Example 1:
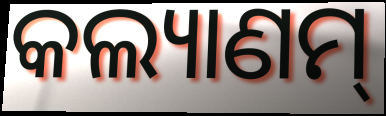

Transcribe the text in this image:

କଲ୍ୟାଣମ୍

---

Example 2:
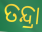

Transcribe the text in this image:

ତନ୍ଦ୍ରା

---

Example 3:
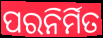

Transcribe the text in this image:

ପରନିର୍ମିତ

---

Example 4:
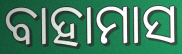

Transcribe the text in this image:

ବାହାମାସ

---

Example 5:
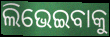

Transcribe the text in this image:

ଲିଭେଇବାକୁ